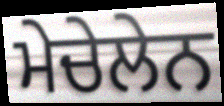
ਮੇਚੇਲੇਨ